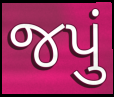
જપું